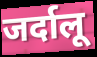
जर्दालू